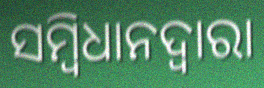
ସମ୍ବିଧାନଦ୍ବାରା